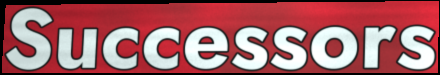
Successors